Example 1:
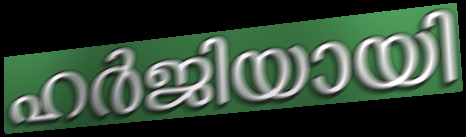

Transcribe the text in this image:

ഹർജിയായി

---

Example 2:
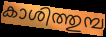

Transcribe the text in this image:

കാശിത്തുമ്പ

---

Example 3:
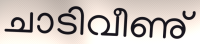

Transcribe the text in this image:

ചാടിവീണു്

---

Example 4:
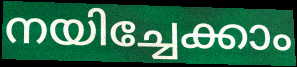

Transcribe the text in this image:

നയിച്ചേക്കാം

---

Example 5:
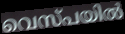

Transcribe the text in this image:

വെസ്പയിൽ